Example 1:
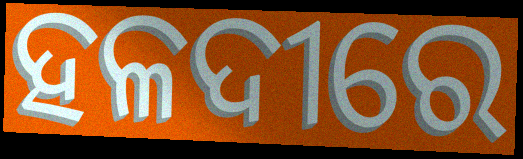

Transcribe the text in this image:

ହଳଦୀରେ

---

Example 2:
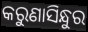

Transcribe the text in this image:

କରୁଣାସିନ୍ଧୁର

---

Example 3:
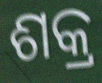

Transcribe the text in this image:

ଶକ୍ର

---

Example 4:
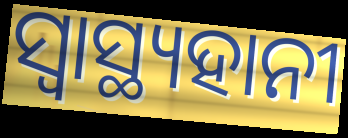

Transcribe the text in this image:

ସ୍ବାସ୍ଥ୍ୟହାନୀ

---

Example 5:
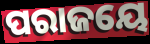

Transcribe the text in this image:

ପରାଜୟେ